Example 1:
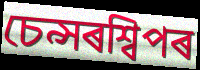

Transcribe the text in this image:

চেন্সৰশ্বিপৰ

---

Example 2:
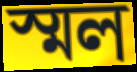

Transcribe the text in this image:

স্মল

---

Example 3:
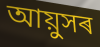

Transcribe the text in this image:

আয়ুসৰ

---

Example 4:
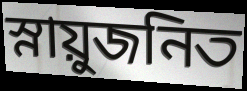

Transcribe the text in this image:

স্নায়ুজনিত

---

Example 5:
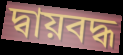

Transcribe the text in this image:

দ্বায়বদ্ধ